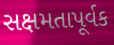
સક્ષમતાપૂર્વક